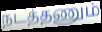
நடத்தணும்